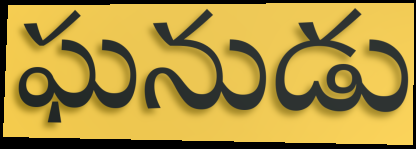
ఘనుడు